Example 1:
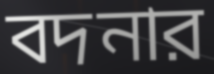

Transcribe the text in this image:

বদনার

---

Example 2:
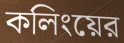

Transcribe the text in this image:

কলিংয়ের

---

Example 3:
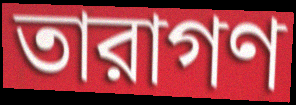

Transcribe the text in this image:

তারাগণ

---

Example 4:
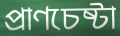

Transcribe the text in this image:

প্রাণচেষ্টা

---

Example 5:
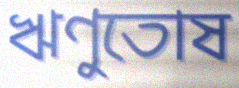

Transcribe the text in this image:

ঋণুতোষ